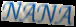
NANA